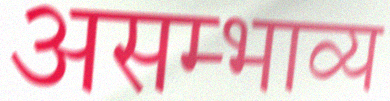
असम्भाव्य